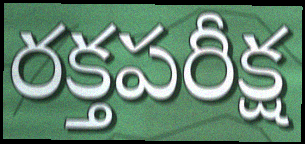
రక్తపరీక్ష